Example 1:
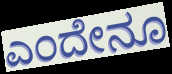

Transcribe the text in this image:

ಎಂದೇನೂ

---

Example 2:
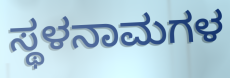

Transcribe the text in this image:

ಸ್ಥಳನಾಮಗಳ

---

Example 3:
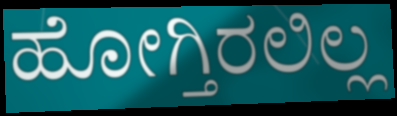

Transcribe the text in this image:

ಹೋಗ್ತಿರಲಿಲ್ಲ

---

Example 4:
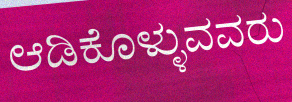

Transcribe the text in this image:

ಆಡಿಕೊಳ್ಳುವವರು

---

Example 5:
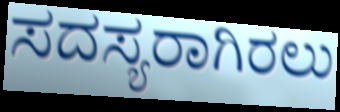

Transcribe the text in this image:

ಸದಸ್ಯರಾಗಿರಲು